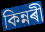
কিন্নৰী